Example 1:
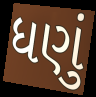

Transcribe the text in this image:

ધણું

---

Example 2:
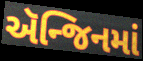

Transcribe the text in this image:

ઍન્જિનમાં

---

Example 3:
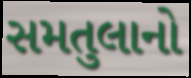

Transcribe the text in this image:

સમતુલાનો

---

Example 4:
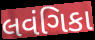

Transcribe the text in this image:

લવંગિકા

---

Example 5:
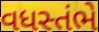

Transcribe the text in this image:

વધસ્તંભે